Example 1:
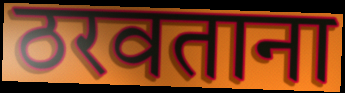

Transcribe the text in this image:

ठरवताना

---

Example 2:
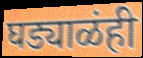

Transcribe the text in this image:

घड्याळंही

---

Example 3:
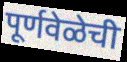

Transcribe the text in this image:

पूर्णवेळेची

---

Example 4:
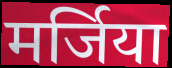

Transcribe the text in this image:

मर्जिया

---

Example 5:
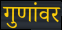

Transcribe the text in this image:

गुणांवर